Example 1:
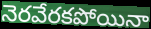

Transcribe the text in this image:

నెరవేరకపోయినా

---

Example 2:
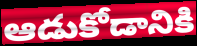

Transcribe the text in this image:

ఆడుకోడానికి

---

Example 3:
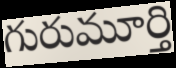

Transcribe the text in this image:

గురుమూర్తి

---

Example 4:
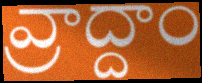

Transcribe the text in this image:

వ్రాద్దాం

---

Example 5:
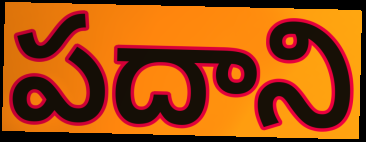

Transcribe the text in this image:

పదాని